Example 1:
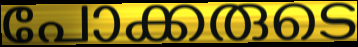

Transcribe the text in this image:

പോക്കരുടെ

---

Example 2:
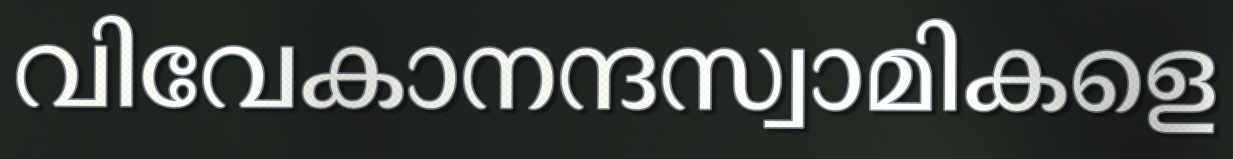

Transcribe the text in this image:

വിവേകാനന്ദസ്വാമികളെ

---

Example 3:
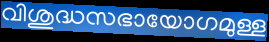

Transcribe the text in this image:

വിശുദ്ധസഭായോഗമുള്ള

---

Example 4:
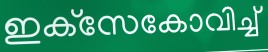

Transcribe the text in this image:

ഇക്‌സേകോവിച്ച്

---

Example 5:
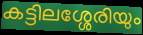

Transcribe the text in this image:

കട്ടിലശ്ശേരിയും